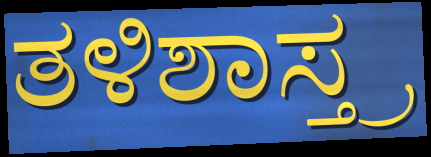
ತಳಿಶಾಸ್ತ್ರ